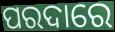
ପରଦାରେ